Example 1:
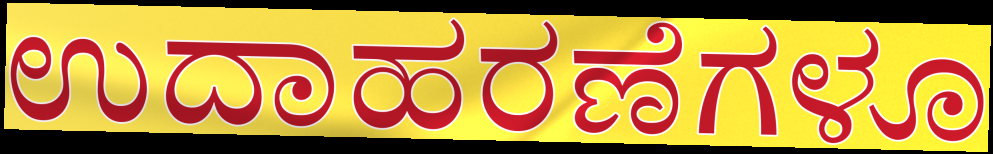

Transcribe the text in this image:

ಉದಾಹರಣೆಗಳೂ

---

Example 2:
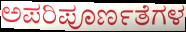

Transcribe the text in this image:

ಅಪರಿಪೂರ್ಣತೆಗಳ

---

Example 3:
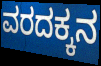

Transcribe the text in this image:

ವರದಕ್ಕನ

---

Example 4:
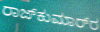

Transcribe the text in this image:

ರಾಜ್‌ಕುಮಾರ್‌ರ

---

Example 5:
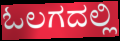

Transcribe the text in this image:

ಓಲಗದಲ್ಲಿ